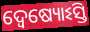
ଦ୍ୱେଷ୍ୟୋଽସ୍ତି